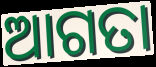
ଆଗତା